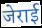
जेराई